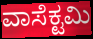
ವಾಸೆಕ್ಟಮಿ